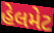
હેલમેટ